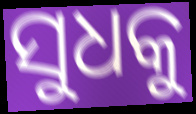
ସୁଧକୁ